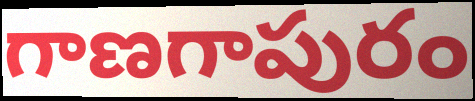
గాణగాపురం